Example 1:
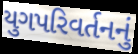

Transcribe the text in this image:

યુગપરિવર્તનનું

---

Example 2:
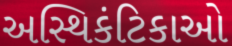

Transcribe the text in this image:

અસ્થિકંટિકાઓ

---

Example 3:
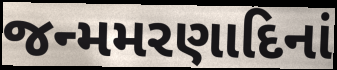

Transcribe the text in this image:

જન્મમરણાદિનાં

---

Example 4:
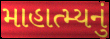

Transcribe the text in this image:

માહાત્મ્યનું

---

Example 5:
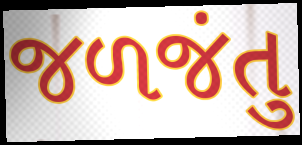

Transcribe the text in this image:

જળજંતુ